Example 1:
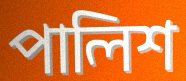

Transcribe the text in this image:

পালিশ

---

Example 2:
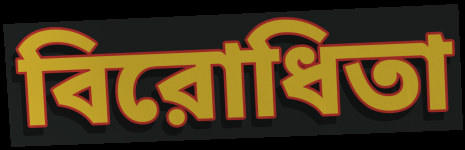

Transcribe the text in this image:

বিরোধিতা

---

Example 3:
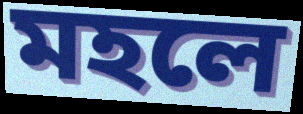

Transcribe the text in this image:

মহলে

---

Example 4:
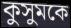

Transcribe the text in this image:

কুসুমকে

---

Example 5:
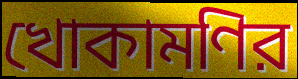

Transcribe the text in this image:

খোকামণির